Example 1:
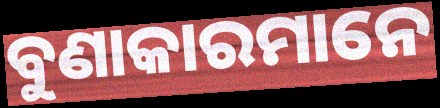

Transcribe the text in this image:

ବୁଣାକାରମାନେ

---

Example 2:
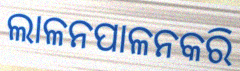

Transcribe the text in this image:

ଲାଳନପାଳନକରି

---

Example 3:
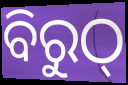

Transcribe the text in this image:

ବିରୁଠ୍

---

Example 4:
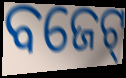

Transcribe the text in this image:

ବଜେଟ୍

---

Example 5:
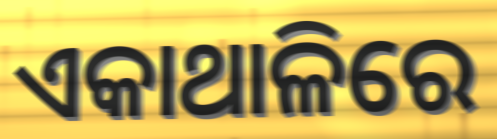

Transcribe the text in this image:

ଏକାଥାଳିରେ